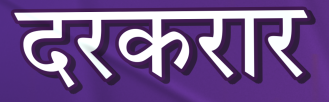
दरकरार